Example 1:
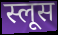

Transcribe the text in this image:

स्लूस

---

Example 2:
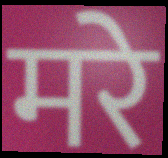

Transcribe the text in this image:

मरे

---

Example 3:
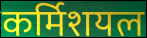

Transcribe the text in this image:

कर्मिशयल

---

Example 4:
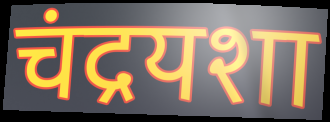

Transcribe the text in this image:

चंद्रयशा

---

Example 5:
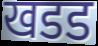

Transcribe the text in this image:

खडड